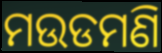
ମଉଡମଣି